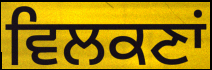
ਵਿਲਕਣਾਂ